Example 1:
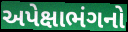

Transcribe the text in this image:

અપેક્ષાભંગનો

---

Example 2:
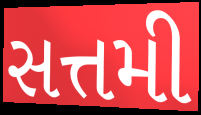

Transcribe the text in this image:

સત્તમી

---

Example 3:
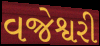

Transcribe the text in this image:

વજ્રેશ્વરી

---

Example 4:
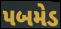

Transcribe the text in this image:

પબમેડ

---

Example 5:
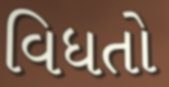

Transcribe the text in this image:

વિધતો